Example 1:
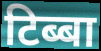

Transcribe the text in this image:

टिब्बा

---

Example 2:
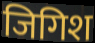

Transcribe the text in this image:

जिगिश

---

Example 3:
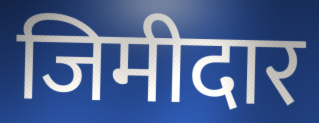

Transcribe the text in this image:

जिमीदार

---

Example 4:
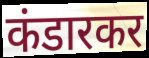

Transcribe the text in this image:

कंडारकर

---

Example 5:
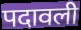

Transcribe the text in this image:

पदावली